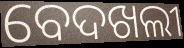
ବେଦଖଲୀ